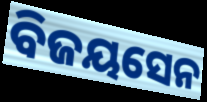
ବିଜୟସେନ